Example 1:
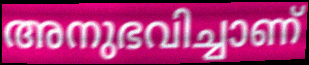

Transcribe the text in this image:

അനുഭവിച്ചാണ്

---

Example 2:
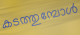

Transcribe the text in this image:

കടത്തുമ്പോൾ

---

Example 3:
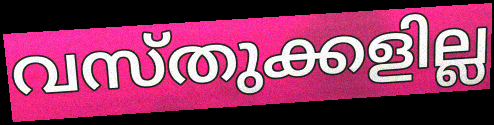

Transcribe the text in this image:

വസ്തുക്കളില്ല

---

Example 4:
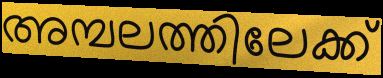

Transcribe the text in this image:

അമ്പലത്തിലേക്ക്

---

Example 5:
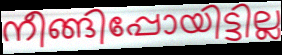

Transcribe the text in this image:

നീങ്ങിപ്പോയിട്ടില്ല